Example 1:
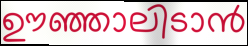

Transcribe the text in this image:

ഊഞ്ഞാലിടാൻ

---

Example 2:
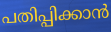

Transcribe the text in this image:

പതിപ്പിക്കാൻ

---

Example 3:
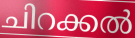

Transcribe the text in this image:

ചിറക്കൽ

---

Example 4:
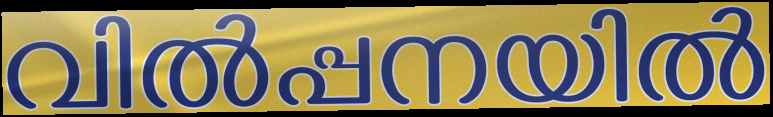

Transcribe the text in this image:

വിൽപ്പനയിൽ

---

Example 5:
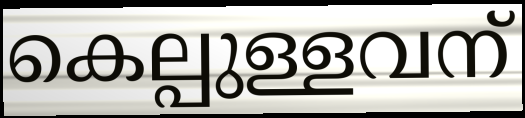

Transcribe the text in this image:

കെല്പുള്ളവന്